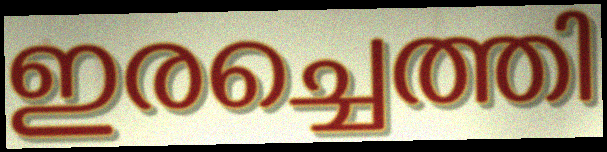
ഇരച്ചെത്തി